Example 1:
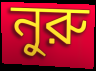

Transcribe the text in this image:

নুরু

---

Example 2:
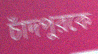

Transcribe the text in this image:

চাঁদপুরকে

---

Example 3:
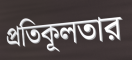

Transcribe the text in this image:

প্রতিকূলতার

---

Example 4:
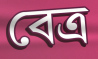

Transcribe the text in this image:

বেত্র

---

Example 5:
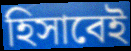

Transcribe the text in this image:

হিসাবেই